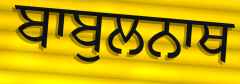
ਬਾਬੁਲਨਾਥ